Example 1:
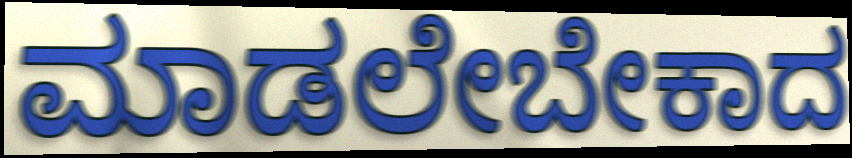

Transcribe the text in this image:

ಮಾಡಲೇಬೇಕಾದ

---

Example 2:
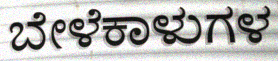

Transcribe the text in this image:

ಬೇಳೆಕಾಳುಗಳ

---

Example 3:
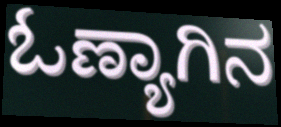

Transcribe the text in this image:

ಓಣ್ಯಾಗಿನ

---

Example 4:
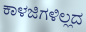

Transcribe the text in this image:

ಕಾಳಜಿಗಳಿಲ್ಲದ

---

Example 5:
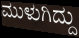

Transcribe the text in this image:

ಮುಳುಗಿದ್ದು